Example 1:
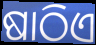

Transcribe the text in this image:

ଷାଠିଏ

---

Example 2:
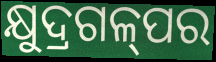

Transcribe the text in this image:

କ୍ଷୁଦ୍ରଗଳ୍‌ପର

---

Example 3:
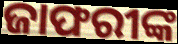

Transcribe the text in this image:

ଜାଫରୀଙ୍କ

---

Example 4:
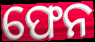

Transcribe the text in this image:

ଫେନ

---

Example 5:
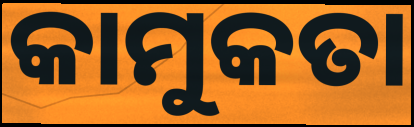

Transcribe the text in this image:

କାମୁକତା